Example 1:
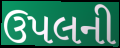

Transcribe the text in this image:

ઉપલની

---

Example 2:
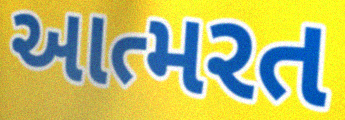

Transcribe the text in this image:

આત્મરત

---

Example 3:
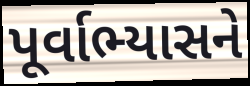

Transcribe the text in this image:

પૂર્વાભ્યાસને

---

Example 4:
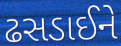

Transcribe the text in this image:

ઢસડાઈને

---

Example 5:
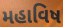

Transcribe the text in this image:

મહાવિષ